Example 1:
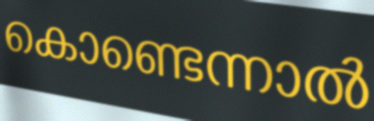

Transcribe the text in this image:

കൊണ്ടെന്നാൽ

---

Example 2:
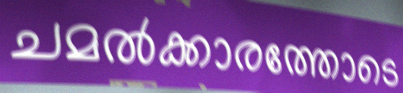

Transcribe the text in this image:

ചമൽക്കാരത്തോടെ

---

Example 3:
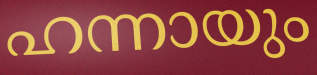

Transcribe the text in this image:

ഹന്നായും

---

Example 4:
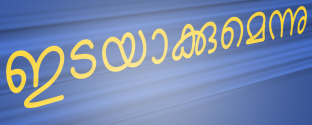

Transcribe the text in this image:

ഇടയാക്കുമെന്നു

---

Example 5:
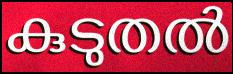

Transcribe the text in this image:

കുടുതൽ